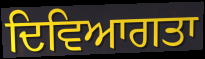
ਦਿਵਿਆਗਤਾ